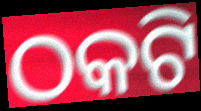
ଠକଟି